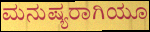
ಮನುಷ್ಯರಾಗಿಯೂ